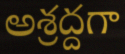
అశ్రద్దగా